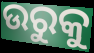
ଉରୁକୁ